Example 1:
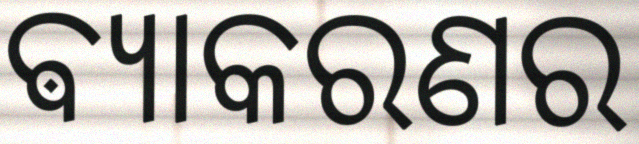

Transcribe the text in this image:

ଵ୍ୟାକରଣର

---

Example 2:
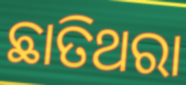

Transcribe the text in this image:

ଛାତିଥରା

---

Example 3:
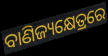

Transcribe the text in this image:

ବାଣିଜ୍ୟକ୍ଷେତ୍ରରେ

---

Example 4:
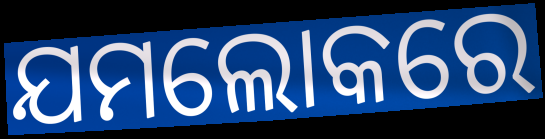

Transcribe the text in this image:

ଯମଲୋକରେ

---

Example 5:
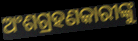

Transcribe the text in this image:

ଅଂଶଗ୍ରହଣକାରୀଙ୍କୁ